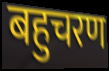
बहुचरण